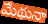
మేథునా